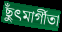
ছুঁৎমার্গীতা